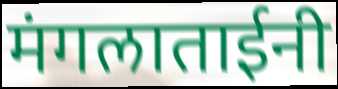
मंगलाताईनी